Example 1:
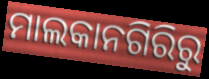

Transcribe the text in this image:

ମାଲକାନଗିରିରୁ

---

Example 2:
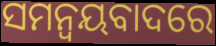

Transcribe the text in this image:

ସମନ୍ୱୟବାଦରେ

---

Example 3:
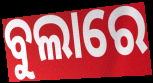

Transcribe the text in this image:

ବୁଲାରେ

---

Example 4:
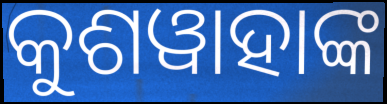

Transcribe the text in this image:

କୁଶୱାହାଙ୍କ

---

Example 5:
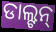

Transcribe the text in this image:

ଡାଲ୍ଟନ୍